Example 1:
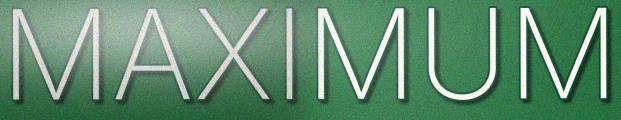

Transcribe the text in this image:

MAXIMUM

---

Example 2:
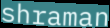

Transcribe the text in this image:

shraman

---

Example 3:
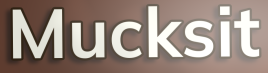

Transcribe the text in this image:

Mucksit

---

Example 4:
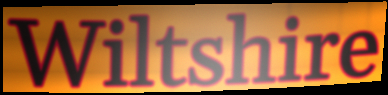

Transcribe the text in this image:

Wiltshire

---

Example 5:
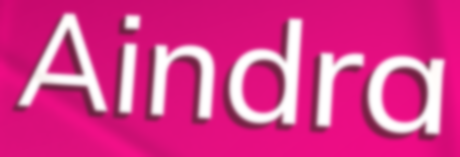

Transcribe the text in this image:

Aindra